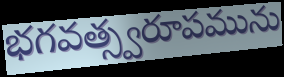
భగవత్స్వరూపమును